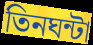
তিনঘন্টা